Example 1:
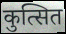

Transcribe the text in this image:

कुत्सित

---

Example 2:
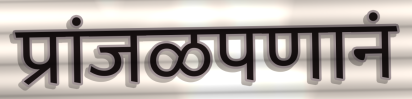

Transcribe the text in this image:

प्रांजळपणानं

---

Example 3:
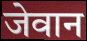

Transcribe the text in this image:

जेवान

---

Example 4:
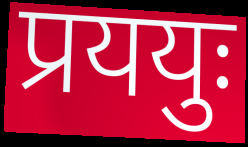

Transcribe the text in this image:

प्रययुः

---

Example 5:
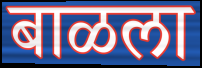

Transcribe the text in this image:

बाळला